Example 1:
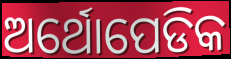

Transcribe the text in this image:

ଅର୍ଥୋପେଡିକ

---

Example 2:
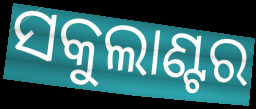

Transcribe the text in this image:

ସକୁଲାଣ୍ଟର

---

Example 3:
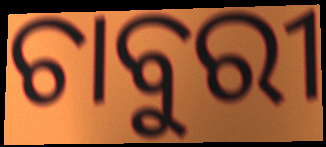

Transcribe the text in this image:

ଚାବୁରୀ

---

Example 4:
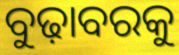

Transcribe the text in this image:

ବୁଢ଼ାବରକୁ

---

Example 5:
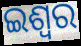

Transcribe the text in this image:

ଇଶ୍ବର